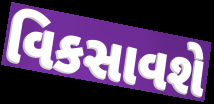
વિકસાવશે